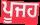
ਪੂਜਹ